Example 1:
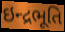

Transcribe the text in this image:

ઇન્દ્રભૂતિ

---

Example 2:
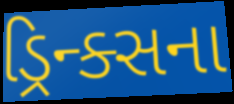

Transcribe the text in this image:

ડ્રિન્ક્સના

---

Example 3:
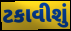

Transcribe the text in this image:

ટકાવીશું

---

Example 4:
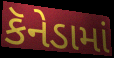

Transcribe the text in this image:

કૅનેડામાં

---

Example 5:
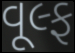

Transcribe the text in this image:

વૂલ્ફ